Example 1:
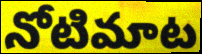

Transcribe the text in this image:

నోటిమాట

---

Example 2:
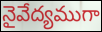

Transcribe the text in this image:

నైవేద్యముగా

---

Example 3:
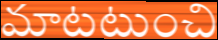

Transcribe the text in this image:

మాటటుంచి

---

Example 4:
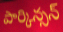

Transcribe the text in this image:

పార్కిన్సన్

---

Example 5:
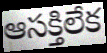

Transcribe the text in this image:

ఆసక్తిలేక